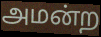
அமன்ற